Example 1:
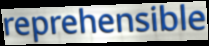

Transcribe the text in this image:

reprehensible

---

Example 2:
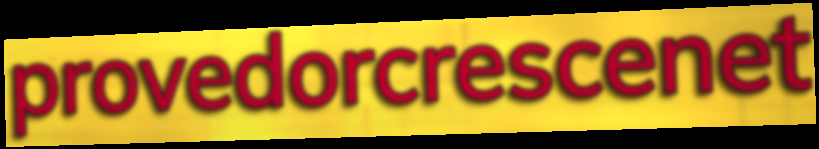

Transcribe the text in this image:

provedorcrescenet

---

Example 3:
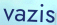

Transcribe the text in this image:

vazis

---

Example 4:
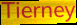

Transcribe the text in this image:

Tierney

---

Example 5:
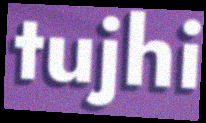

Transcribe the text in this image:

tujhi